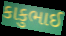
કાકુભાઈ